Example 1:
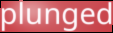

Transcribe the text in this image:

plunged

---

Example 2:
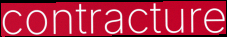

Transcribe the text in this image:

contracture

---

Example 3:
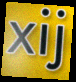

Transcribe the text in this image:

xij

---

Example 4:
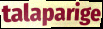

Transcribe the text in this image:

talaparige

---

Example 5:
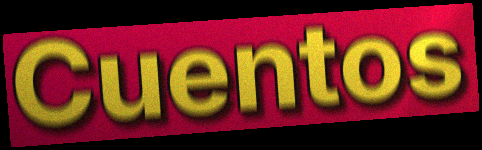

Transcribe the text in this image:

Cuentos